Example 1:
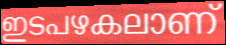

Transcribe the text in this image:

ഇടപഴകലാണ്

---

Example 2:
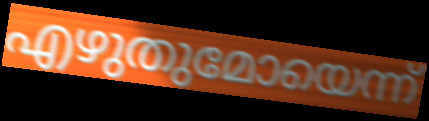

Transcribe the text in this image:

എഴുതുമോയെന്ന്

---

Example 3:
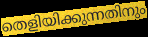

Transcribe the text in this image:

തെളിയിക്കുന്നതിനും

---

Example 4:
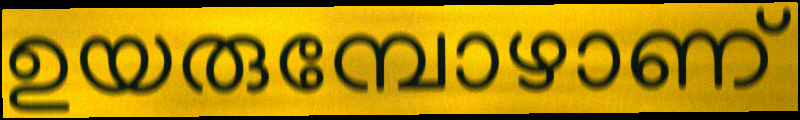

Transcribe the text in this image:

ഉയരുമ്പോഴാണ്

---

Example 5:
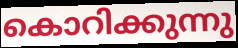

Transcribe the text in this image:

കൊറിക്കുന്നു